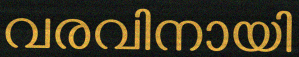
വരവിനായി